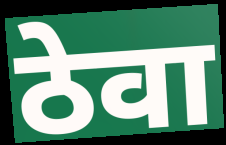
ठेवा